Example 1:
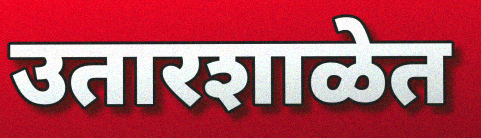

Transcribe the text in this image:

उतारशाळेत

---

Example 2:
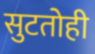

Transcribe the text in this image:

सुटतोही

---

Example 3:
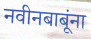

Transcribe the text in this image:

नवीनबाबूंना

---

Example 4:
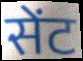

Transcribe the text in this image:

सेंट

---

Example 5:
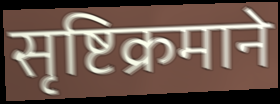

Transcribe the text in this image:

सृष्टिक्रमाने